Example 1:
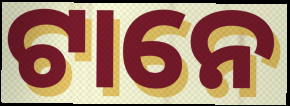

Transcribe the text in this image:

ଟାନେ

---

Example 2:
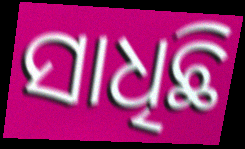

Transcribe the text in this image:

ସାଧିଛି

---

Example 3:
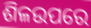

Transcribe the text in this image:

ଶିଳଉପରେ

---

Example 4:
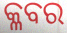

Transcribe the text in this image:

କ୍ଳବର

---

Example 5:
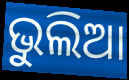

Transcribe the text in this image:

ଭୁଲିଆ